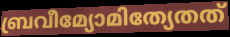
ബ്രവീമ്യോമിത്യേതത്